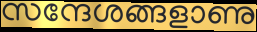
സന്ദേശങ്ങളാണു